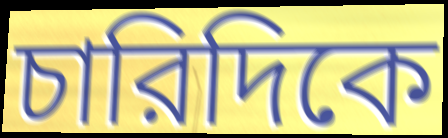
চারিদিকে